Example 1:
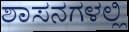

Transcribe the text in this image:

ಶಾಸನಗಳಲ್ಲಿ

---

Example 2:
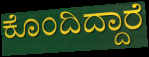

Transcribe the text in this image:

ಕೊಂದಿದ್ದಾರೆ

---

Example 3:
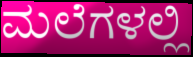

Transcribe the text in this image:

ಮಲೆಗಳಲ್ಲಿ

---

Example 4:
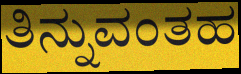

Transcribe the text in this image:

ತಿನ್ನುವಂತಹ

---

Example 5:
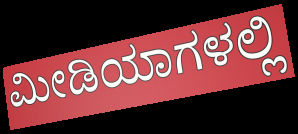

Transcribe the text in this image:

ಮೀಡಿಯಾಗಳಲ್ಲಿ